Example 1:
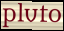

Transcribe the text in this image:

pluto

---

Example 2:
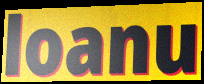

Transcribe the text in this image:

loanu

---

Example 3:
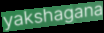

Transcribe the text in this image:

yakshagana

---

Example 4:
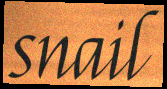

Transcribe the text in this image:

snail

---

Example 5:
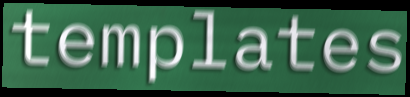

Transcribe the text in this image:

templates